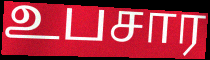
உபசார